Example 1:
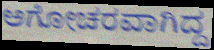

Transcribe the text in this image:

ಅಗೋಚರವಾಗಿದ್ದ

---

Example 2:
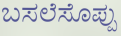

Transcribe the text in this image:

ಬಸಲೆಸೊಪ್ಪು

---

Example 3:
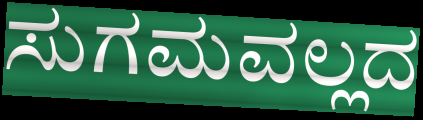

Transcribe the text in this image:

ಸುಗಮವಲ್ಲದ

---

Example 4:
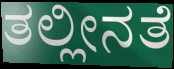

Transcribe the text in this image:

ತಲ್ಲೀನತೆ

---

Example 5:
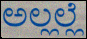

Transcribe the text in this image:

ಅಲ್ಲಲ್ಲೆ